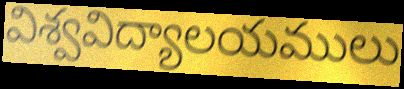
విశ్వవిద్యాలయములు